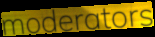
moderators